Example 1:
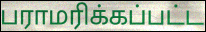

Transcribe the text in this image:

பராமரிக்கப்பட்ட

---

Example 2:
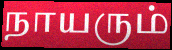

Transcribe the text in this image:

நாயரும்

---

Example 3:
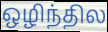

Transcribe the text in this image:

ஒழிந்தில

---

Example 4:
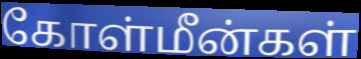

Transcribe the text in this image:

கோள்மீன்கள்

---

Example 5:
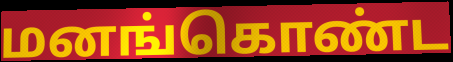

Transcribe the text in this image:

மனங்கொண்ட